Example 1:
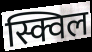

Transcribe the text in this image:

स्क्विल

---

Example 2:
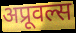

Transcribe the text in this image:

अप्रूवल्स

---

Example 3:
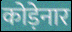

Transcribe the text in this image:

कोड़ेनार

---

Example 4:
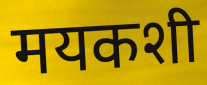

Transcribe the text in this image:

मयकशी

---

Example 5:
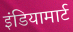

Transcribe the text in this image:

इंडियामार्ट